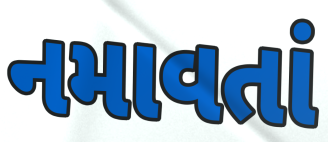
નમાવતાં